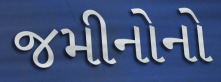
જમીનોનો